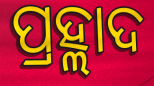
ପ୍ରହ୍ଲାଦ